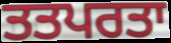
ਤਤਪਰਤਾ